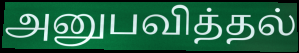
அனுபவித்தல்